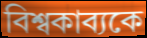
বিশ্বকাব্যকে